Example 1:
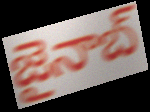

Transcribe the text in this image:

జైనాబ్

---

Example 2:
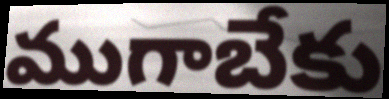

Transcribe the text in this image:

ముగాబేకు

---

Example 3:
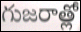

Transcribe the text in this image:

గుజరాత్లో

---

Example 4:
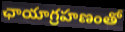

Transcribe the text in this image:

ఛాయాగ్రహణంతో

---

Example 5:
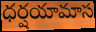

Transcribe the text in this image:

ధర్షయామాస